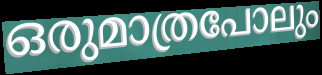
ഒരുമാത്രപോലും